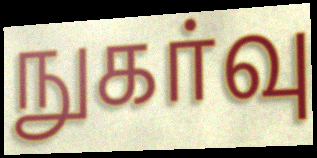
நுகர்வு